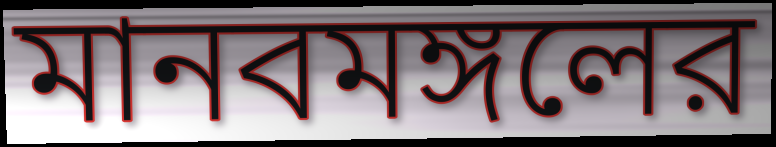
মানবমঙ্গলের